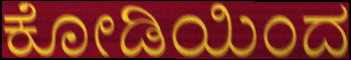
ಕೋಡಿಯಿಂದ